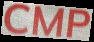
CMP